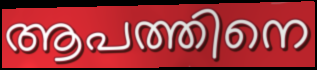
ആപത്തിനെ